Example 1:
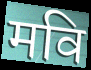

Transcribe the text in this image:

मवि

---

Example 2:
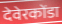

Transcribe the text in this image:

देवेरकोंडा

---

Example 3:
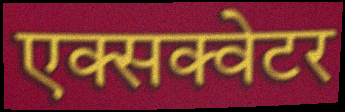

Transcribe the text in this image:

एक्सक्वेटर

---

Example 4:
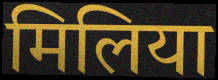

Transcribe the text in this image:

मिलिया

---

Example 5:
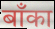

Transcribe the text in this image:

बाँका